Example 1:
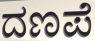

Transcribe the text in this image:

ದಣಪೆ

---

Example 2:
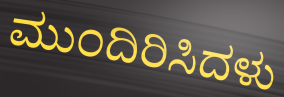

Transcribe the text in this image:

ಮುಂದಿರಿಸಿದಳು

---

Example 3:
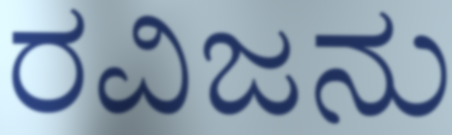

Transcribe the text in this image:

ರವಿಜನು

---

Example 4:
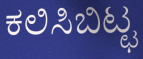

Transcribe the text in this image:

ಕಲಿಸಿಬಿಟ್ಟ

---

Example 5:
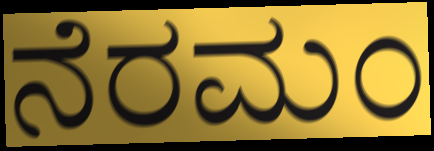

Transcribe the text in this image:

ನೆರಮಂ